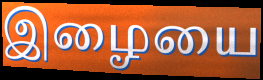
இழையை